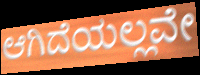
ಆಗಿದೆಯಲ್ಲವೇ